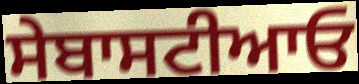
ਸੇਬਾਸਟੀਆਓ